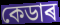
কেডাৰ